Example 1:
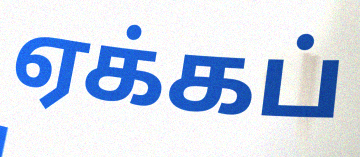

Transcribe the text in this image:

ஏக்கப்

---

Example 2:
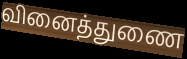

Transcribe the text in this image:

வினைத்துணை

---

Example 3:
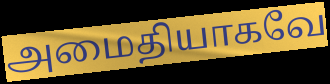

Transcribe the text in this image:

அமைதியாகவே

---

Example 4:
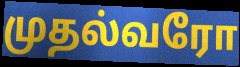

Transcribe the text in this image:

முதல்வரோ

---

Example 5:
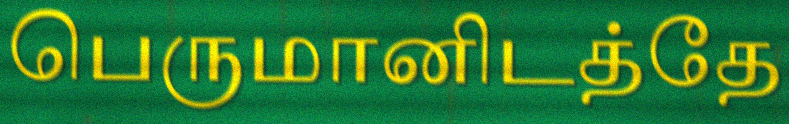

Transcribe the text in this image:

பெருமானிடத்தே